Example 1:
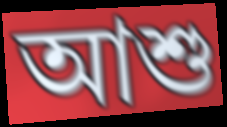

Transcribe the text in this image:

আশু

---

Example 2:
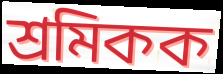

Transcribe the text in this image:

শ্ৰমিকক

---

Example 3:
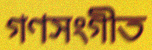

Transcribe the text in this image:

গণসংগীত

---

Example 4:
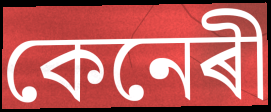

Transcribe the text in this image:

কেনেৰী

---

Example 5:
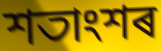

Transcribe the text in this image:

শতাংশৰ